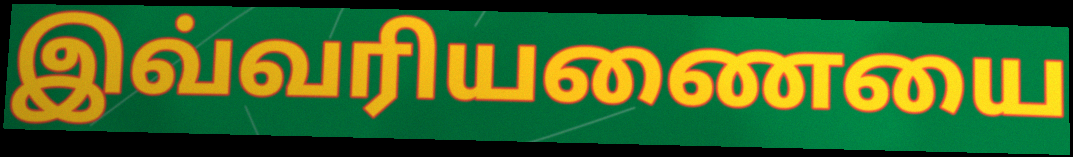
இவ்வரியணையை